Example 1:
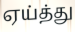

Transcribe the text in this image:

ஏய்த்து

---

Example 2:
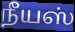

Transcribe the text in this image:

நீயஸ்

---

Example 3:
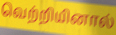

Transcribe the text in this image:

வெற்றியினால்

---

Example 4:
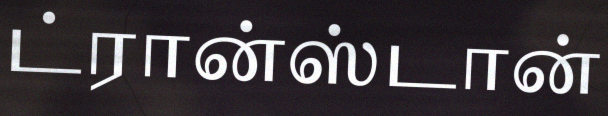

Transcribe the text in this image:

ட்ரான்ஸ்டான்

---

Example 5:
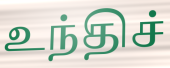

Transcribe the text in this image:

உந்திச்